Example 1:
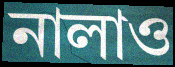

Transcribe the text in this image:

নালাও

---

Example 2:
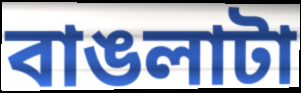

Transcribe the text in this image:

বাঙলাটা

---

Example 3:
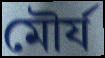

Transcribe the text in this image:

মৌর্য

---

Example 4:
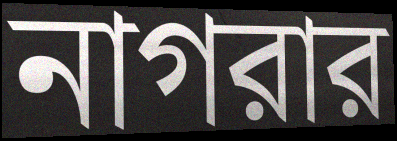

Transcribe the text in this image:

নাগরার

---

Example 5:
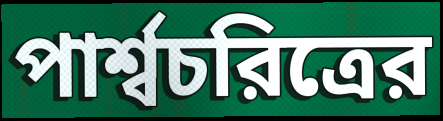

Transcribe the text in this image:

পার্শ্বচরিত্রের